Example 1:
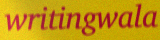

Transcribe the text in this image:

writingwala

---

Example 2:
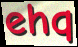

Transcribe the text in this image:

ehq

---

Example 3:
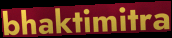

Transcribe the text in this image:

bhaktimitra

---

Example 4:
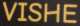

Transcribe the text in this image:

VISHE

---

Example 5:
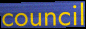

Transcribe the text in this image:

council